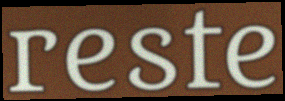
reste